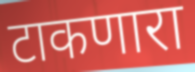
टाकणारा